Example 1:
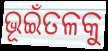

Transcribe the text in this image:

ଭୂଇଁତଳକୁ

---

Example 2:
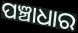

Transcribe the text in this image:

ପଞ୍ଚାଧାର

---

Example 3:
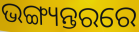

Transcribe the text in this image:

ଭଙ୍ଗ୍ୟନ୍ତରରେ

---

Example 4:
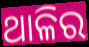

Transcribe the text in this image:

ଥାଳିର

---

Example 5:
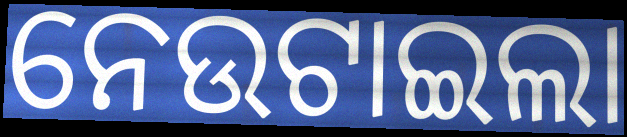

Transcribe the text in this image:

ନେଉଟାଇଲା